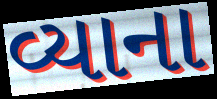
વ્યાના